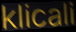
klicali